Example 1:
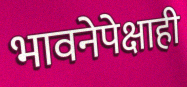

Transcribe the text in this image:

भावनेपेक्षाही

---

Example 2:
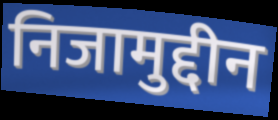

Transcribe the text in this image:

निजामुद्दीन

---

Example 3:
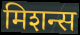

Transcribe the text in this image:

मिशन्स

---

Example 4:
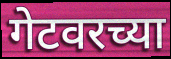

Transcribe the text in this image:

गेटवरच्या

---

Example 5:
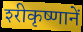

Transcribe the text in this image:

श्रीकृष्णानें